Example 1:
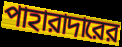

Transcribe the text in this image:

পাহারাদারের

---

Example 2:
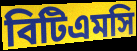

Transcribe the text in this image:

বিটিএমসি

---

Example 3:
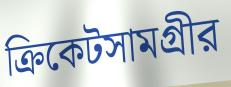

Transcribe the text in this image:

ক্রিকেটসামগ্রীর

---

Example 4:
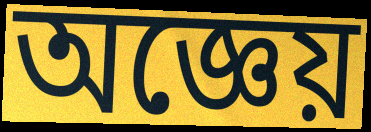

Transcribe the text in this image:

অজ্ঞেয়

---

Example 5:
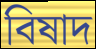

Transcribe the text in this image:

বিষাদ